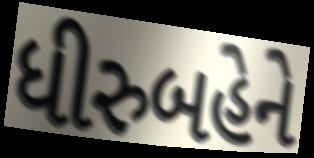
ધીરુબહેને